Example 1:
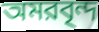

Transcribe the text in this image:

অমরবৃন্দ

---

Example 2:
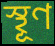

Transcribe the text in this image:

স্থূণ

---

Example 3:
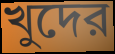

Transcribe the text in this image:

খুদের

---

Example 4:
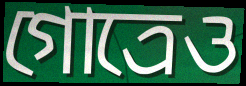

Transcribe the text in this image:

গোত্রেও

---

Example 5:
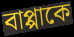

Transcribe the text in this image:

বাপ্পাকে